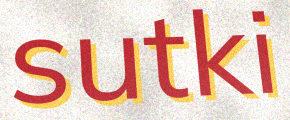
sutki